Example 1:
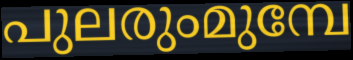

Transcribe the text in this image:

പുലരുംമുമ്പേ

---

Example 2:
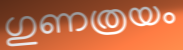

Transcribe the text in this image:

ഗുണത്രയം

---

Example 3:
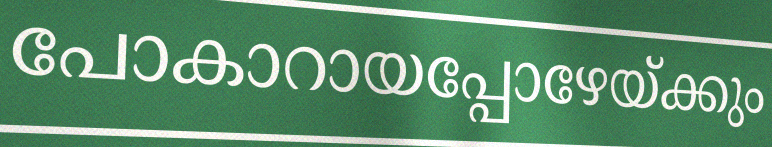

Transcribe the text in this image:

പോകാറായപ്പോഴേയ്ക്കും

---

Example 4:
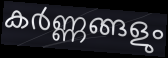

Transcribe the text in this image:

കർണ്ണങ്ങളും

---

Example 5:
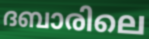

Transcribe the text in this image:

ദബാരിലെ